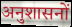
अनुशासनों